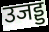
उजड्ड